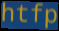
htfp